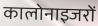
कालोनाइजरों